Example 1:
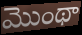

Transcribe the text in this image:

మొంథా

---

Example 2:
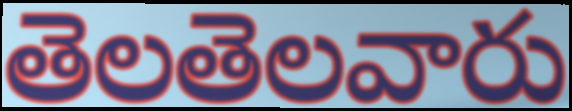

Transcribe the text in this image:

తెలతెలవారు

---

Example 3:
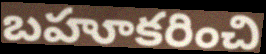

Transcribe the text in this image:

బహూకరించి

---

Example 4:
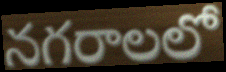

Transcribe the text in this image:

నగరాలలో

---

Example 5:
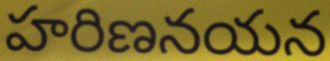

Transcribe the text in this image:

హరిణనయన